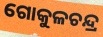
ଗୋକୁଳଚନ୍ଦ୍ର